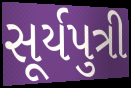
સૂર્યપુત્રી